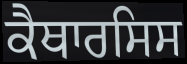
ਕੈਥਾਰਸਿਸ